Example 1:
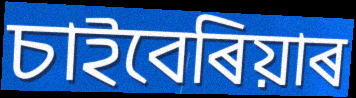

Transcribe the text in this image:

চাইবেৰিয়াৰ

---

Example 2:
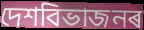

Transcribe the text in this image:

দেশবিভাজনৰ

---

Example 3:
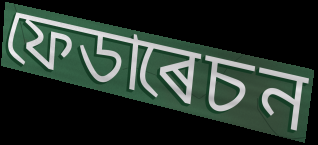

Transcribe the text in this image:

ফেডাৰেচন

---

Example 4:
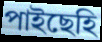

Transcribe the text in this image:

পাইছেহি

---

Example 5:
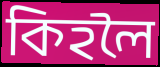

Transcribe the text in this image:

কিহলৈ